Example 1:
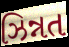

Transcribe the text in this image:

ઝિન્નત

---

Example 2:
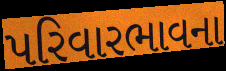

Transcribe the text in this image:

પરિવારભાવના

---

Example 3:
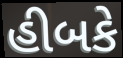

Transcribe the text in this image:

હીબકે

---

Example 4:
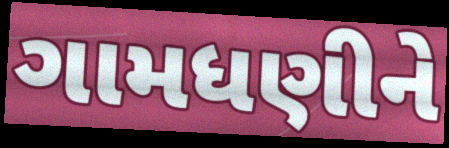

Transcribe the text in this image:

ગામધણીને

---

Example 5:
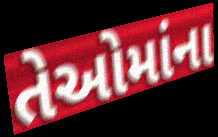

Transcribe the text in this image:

તેઓમાંના